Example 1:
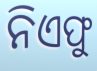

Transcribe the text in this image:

ନିଏଫୁ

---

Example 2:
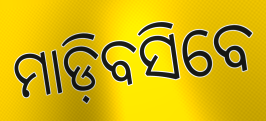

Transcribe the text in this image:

ମାଡ଼ିବସିବେ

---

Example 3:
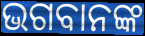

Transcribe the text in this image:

ଭଗବାନଙ୍କ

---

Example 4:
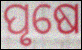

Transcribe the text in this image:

ପୃଷେ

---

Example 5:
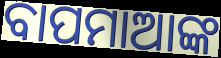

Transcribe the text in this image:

ବାପମାଆଙ୍କ